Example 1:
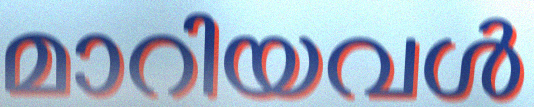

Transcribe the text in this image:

മാറിയവൾ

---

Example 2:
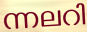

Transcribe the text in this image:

ന്നലറി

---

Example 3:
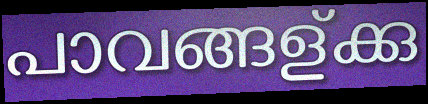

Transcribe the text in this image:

പാവങ്ങള്ക്കു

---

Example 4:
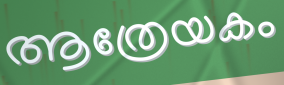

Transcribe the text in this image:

ആത്രേയകം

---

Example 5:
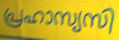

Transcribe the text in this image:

പ്രഹാസ്യസി